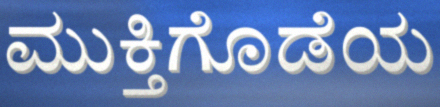
ಮುಕ್ತಿಗೊಡೆಯ